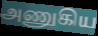
அணுகிய